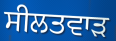
ਸੀਲਤਵਾੜ